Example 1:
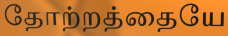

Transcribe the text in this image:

தோற்றத்தையே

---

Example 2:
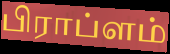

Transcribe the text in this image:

பிராப்ளம்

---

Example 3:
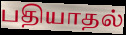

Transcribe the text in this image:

பதியாதல்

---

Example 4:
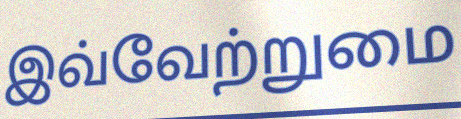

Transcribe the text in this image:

இவ்வேற்றுமை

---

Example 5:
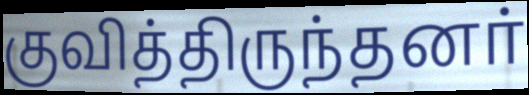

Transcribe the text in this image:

குவித்திருந்தனர்